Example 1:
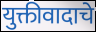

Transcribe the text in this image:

युक्तीवादाचे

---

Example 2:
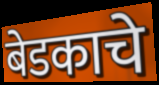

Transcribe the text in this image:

बेडकाचे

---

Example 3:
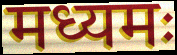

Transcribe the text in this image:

मध्यमः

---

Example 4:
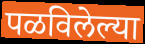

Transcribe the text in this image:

पळविलेल्या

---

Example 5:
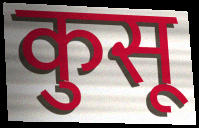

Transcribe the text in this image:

कुसू